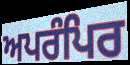
ਅਪਰੰਪਿਰ